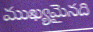
ముఖ్యమైనది